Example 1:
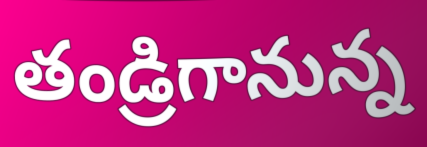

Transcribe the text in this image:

తండ్రిగానున్న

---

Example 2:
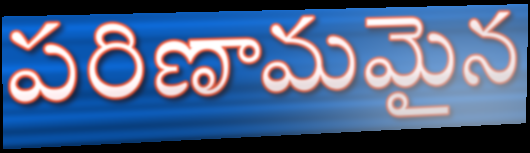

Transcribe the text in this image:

పరిణామమైన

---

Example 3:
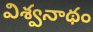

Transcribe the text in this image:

విశ్వనాథం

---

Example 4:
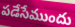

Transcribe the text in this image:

పడేసేముందు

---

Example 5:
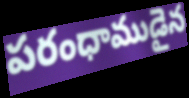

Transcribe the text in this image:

పరంధాముడైన